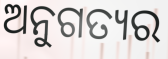
ଅନୁଗତ୍ୟର